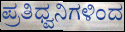
ಪ್ರತಿಧ್ವನಿಗಳಿಂದ